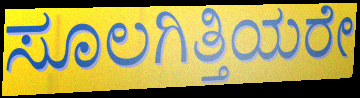
ಸೂಲಗಿತ್ತಿಯರೇ